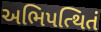
અભિપત્થિતં